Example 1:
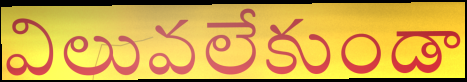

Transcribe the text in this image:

విలువలేకుండా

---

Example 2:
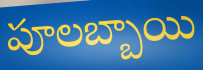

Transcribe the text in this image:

పూలబ్బాయి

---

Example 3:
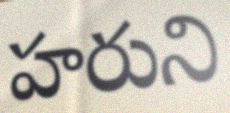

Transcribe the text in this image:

హరుని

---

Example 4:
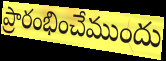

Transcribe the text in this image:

ప్రారంభించేముందు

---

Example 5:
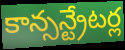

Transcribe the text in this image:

కాన్సన్ట్రేటర్ల